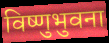
विष्णुभुवना